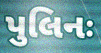
પુલિનઃ